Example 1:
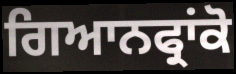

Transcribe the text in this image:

ਗਿਆਨਫ੍ਰਾਂਕੋ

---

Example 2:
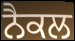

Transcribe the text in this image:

ਨੈਕਲ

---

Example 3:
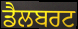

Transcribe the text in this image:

ਡੈਲਬਰਟ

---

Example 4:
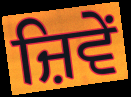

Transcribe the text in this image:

ਜ਼ਿਵੇਂ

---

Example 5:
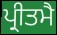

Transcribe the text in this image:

ਪ੍ਰੀਤਮੈ